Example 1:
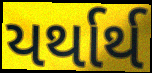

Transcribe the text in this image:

યર્થાર્થ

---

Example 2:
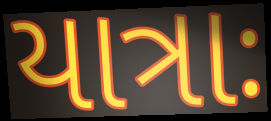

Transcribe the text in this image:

યાત્રાઃ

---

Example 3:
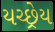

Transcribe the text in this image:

યચ્છ્રેય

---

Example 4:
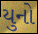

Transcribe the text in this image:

યુનો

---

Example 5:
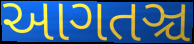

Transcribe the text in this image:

આગતઞ્ચ